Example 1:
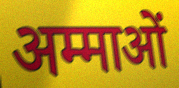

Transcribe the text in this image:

अम्माओं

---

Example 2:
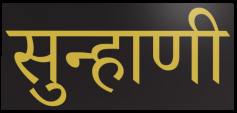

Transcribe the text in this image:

सुन्हाणी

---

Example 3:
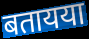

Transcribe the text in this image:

बतायया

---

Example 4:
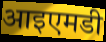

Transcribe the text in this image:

आइएमडी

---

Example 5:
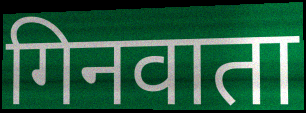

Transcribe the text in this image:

गिनवाता